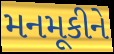
મનમૂકીને